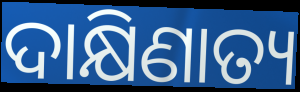
ଦାକ୍ଷିଣାତ୍ୟ